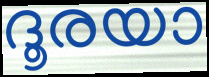
ദൂരയാ